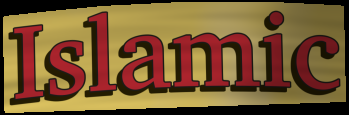
Islamic